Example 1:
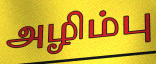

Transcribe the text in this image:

அழிம்பு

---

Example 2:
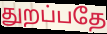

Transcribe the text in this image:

துறப்பதே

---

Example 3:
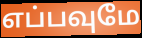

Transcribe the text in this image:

எப்பவுமே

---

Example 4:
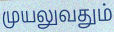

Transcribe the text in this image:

முயலுவதும்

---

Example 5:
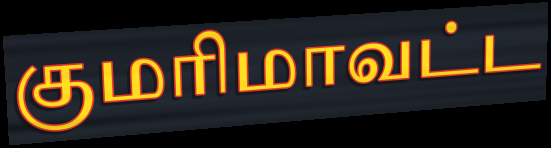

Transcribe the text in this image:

குமரிமாவட்ட